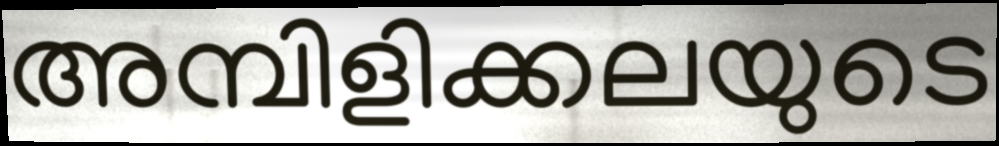
അമ്പിളിക്കലയുടെ